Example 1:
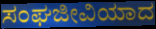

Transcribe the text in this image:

ಸಂಘಜೀವಿಯಾದ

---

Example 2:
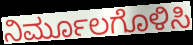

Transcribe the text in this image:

ನಿರ್ಮೂಲಗೊಳಿಸಿ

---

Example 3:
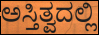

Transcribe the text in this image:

ಅಸ್ತಿತ್ವದಲ್ಲಿ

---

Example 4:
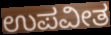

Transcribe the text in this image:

ಉಪವೀತ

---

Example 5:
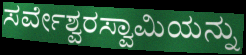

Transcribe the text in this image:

ಸರ್ವೇಶ್ವರಸ್ವಾಮಿಯನ್ನು